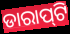
ଡାରାପ୍‌ଟି